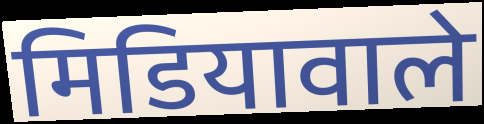
मिडियावाले